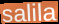
salila